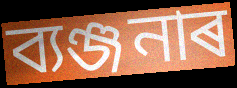
ব্যঞ্জনাৰ